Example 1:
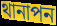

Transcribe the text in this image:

থানাপন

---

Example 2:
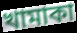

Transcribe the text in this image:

খামাকা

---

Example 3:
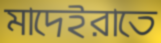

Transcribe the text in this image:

মাদেইরাতে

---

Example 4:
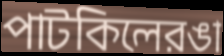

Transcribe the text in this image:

পাটকিলেরঙা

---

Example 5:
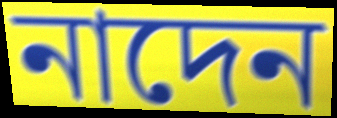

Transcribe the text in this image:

নাদেন